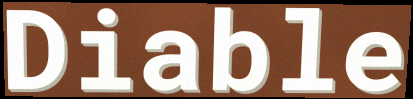
Diable